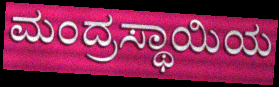
ಮಂದ್ರಸ್ಥಾಯಿಯ